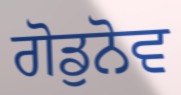
ਗੋਡੁਨੋਵ